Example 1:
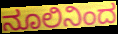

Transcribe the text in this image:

ನೂಲಿನಿಂದ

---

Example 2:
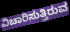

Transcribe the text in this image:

ವಿಚಾರಿಸುತ್ತಿರುವ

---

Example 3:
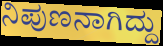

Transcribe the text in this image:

ನಿಪುಣನಾಗಿದ್ದು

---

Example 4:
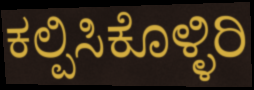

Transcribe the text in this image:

ಕಲ್ಪಿಸಿಕೊಳ್ಳಿರಿ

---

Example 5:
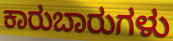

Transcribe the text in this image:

ಕಾರುಬಾರುಗಳು